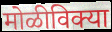
मोळीविक्या